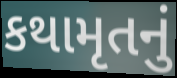
કથામૃતનું